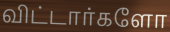
விட்டார்களோ